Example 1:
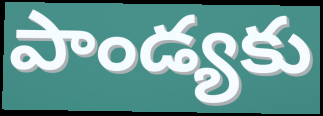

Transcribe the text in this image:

పాండ్యకు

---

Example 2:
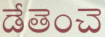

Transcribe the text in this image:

డేతెంచె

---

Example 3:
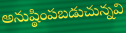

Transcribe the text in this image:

అనుష్ఠింపబడుచున్నవి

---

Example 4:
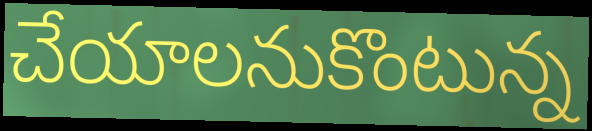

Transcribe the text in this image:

చేయాలనుకొంటున్న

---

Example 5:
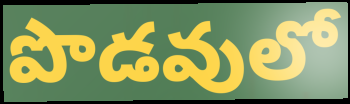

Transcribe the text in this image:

పొడవులో